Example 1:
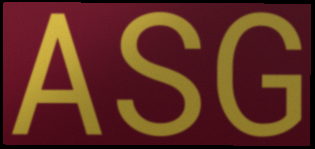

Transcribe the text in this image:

ASG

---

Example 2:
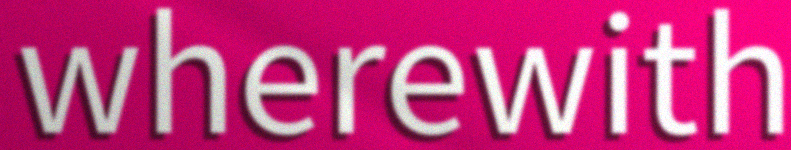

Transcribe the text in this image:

wherewith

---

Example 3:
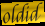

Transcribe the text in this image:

oldid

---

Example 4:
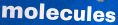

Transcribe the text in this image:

molecules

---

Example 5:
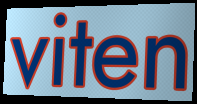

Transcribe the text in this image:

viten